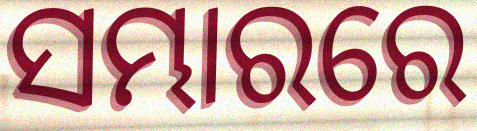
ସମ୍ଭାରରେ